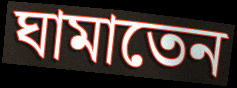
ঘামাতেন